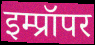
इम्प्रॉपर